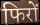
फिरों